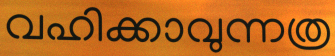
വഹിക്കാവുന്നത്ര